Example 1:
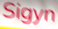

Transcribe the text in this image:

Sigyn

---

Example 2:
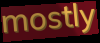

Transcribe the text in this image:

mostly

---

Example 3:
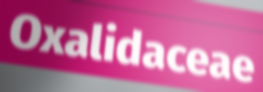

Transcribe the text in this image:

Oxalidaceae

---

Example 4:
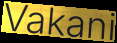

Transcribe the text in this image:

Vakani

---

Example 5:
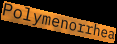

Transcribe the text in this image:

Polymenorrhea